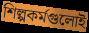
শিল্পকর্মগুলোই